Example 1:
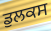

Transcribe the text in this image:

ਡੁਲਕਸ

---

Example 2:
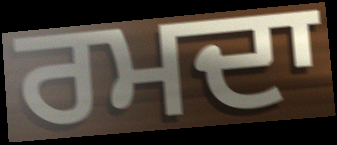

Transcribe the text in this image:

ਰਮਦਾ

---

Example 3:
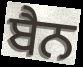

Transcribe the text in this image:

ਬੈਨ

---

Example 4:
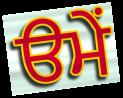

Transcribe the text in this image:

ੳਮੇਂ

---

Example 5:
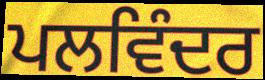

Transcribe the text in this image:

ਪਲਵਿੰਦਰ